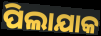
ପିଲାଯାକ